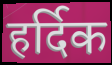
हर्दिक